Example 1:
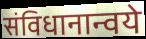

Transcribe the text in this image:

संविधानान्वये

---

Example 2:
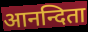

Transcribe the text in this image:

आनन्दिता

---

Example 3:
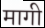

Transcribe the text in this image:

मागी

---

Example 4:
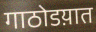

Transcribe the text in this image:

गाठोडय़ात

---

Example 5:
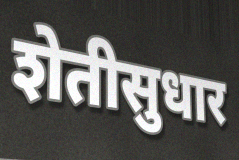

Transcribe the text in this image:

शेतीसुधार